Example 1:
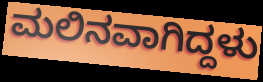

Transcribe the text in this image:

ಮಲಿನವಾಗಿದ್ದಳು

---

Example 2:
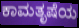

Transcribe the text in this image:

ಕಾಮತೃಷೆಯ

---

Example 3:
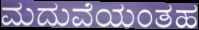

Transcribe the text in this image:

ಮದುವೆಯಂತಹ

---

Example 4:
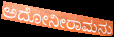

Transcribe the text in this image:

ಅದೋನೀರಾಮನು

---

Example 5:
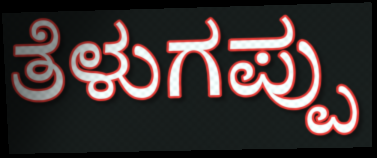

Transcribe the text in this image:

ತೆಳುಗಪ್ಪು